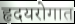
हृदयरोगात